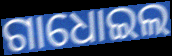
ଗାଧୋଇଲ